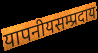
यापनीयसम्प्रदाय